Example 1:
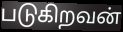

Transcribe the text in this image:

படுகிறவன்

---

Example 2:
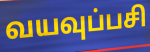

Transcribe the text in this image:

வயவுப்பசி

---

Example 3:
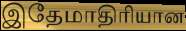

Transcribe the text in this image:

இதேமாதிரியான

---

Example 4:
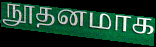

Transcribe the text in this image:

நூதனமாக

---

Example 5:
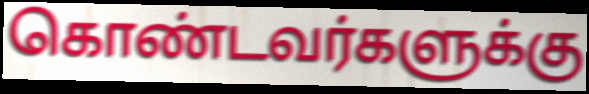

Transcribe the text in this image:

கொண்டவர்களுக்கு